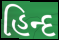
હિન્દ